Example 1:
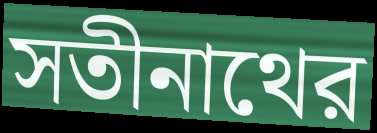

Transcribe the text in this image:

সতীনাথের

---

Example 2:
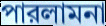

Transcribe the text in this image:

পারলামনা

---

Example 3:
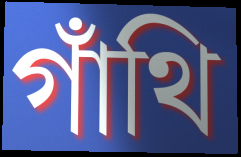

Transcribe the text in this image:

গাঁথি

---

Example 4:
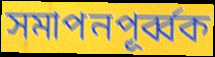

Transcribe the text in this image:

সমাপনপূর্ব্বক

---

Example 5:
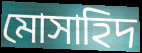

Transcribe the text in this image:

মোসাহিদ